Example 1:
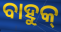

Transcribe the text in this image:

ବାହୁକ୍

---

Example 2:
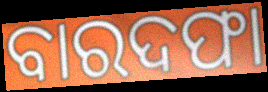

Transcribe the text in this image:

ବାରଦଫା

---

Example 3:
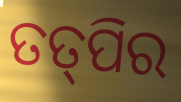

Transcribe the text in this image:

ତତ୍‌ପିର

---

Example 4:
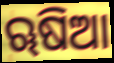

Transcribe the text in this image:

ୠଷିଆ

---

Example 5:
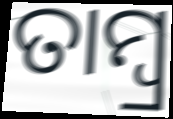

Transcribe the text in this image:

ତାମ୍ବ୍ର